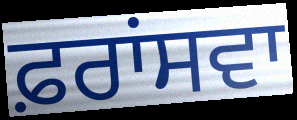
ਫ਼ਰਾਂਸਵਾ